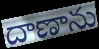
దాణాను